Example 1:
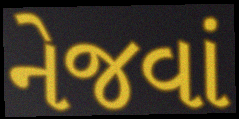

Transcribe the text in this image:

નેજવાં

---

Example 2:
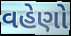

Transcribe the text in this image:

વહેણો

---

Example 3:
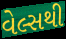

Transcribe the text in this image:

વેલ્સથી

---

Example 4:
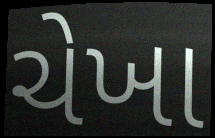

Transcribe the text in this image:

ચેખા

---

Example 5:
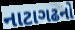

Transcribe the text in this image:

નાટાગઢનો